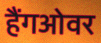
हैंगओवर